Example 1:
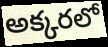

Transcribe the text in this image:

అక్కరలో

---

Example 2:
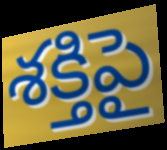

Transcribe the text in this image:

శక్తిపై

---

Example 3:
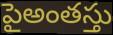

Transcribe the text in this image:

పైఅంతస్తు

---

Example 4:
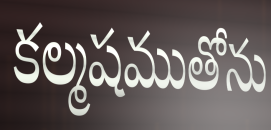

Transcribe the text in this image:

కల్మషముతోను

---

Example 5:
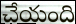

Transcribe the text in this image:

చేయంది